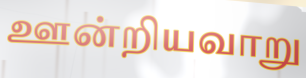
ஊன்றியவாறு